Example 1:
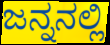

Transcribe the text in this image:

ಜನ್ನನಲ್ಲಿ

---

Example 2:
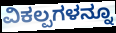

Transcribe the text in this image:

ವಿಕಲ್ಪಗಳನ್ನೂ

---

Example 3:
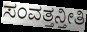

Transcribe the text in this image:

ಸಂವತ್ತನ್ತೀತಿ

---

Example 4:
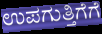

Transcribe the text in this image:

ಉಪಗುತ್ತಿಗೆಗೆ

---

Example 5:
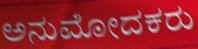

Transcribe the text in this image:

ಅನುಮೋದಕರು